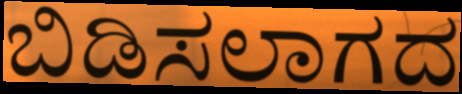
ಬಿಡಿಸಲಾಗದ